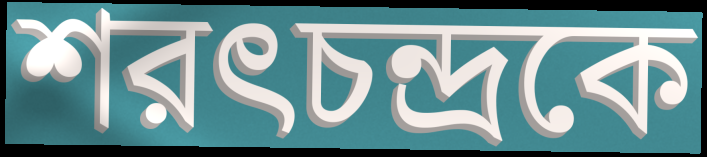
শরৎচন্দ্রকে